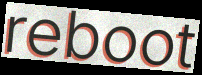
reboot